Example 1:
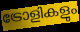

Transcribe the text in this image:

ട്രോളികളും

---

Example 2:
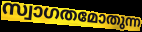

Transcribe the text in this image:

സ്വാഗതമോതുന്ന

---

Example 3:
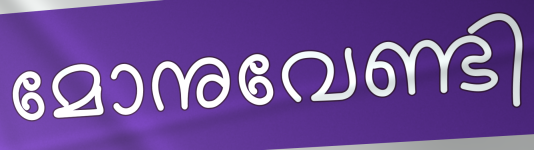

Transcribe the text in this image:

മോനുവേണ്ടി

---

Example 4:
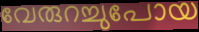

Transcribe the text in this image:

വേരുറച്ചുപോയ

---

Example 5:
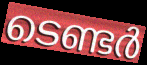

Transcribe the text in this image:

ടെണ്ടർ